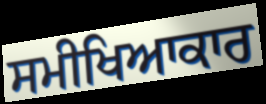
ਸਮੀਖਿਆਕਾਰ